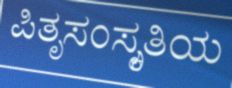
ಪಿತೃಸಂಸ್ಕೃತಿಯ